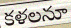
కళలనూ